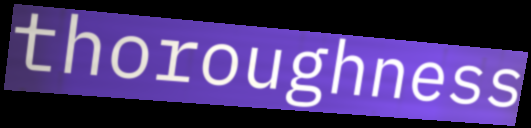
thoroughness